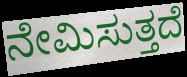
ನೇಮಿಸುತ್ತದೆ